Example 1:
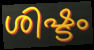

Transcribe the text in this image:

ശിഷ്ടം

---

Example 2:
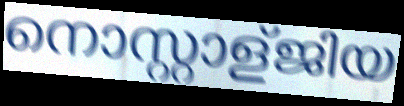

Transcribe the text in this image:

നൊസ്റ്റാള്ജിയ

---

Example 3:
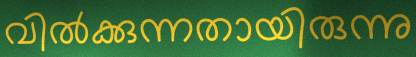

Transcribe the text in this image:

വിൽക്കുന്നതായിരുന്നു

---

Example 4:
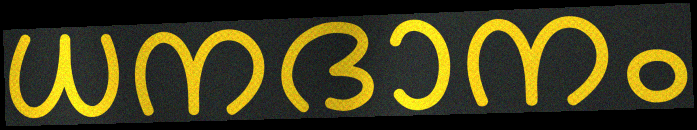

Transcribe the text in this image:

ധനദാനം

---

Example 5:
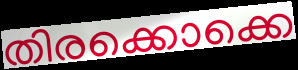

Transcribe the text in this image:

തിരക്കൊക്കെ